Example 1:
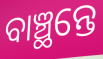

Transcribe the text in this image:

ବାଞ୍ଛନ୍ତେ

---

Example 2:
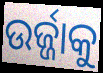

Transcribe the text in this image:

ଉର୍ଜ୍ଜାକୁ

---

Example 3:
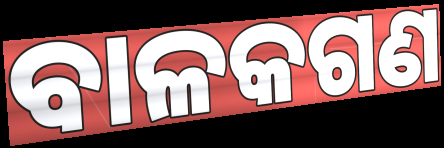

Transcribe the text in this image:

ବାଳକଗଣ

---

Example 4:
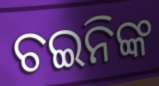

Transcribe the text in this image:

ଚଇନିଙ୍କ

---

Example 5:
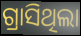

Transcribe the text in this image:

ଗ୍ରାସିଥିଲା